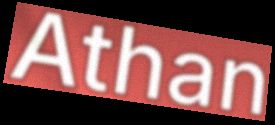
Athan